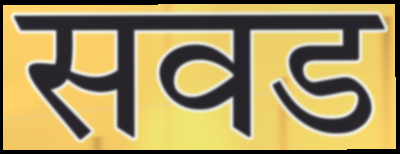
सवड